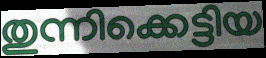
തുന്നിക്കെട്ടിയ